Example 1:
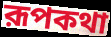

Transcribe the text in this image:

রূপকথা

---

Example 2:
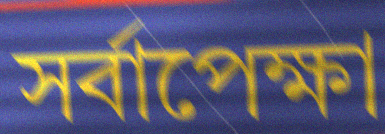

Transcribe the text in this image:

সর্বাপেক্ষা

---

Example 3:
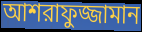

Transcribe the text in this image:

আশরাফুজ্জামান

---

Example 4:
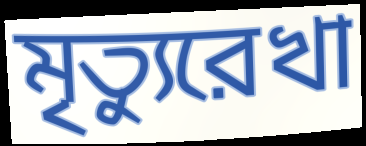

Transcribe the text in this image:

মৃত্যুরেখা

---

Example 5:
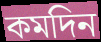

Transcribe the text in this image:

কমদিন